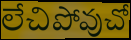
లేచిపోవుచో